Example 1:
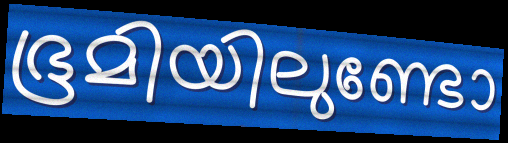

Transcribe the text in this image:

ഭൂമിയിലുണ്ടോ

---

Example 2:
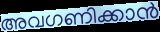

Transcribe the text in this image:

അവഗണിക്കാൻ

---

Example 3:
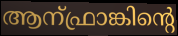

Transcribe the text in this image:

ആന്ഫ്രാങ്കിന്റെ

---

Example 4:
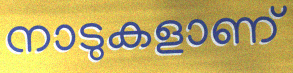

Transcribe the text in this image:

നാടുകളാണ്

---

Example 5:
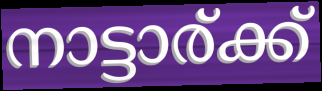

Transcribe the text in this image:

നാട്ടാര്ക്ക്